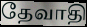
தேவாதி